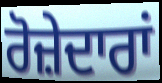
ਰੋਜ਼ੇਦਾਰਾਂ